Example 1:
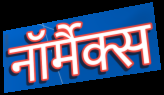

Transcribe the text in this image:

नॉर्मैक्स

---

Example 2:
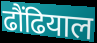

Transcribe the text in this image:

ढौंढियाल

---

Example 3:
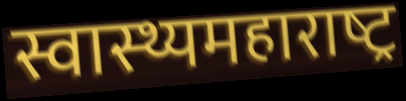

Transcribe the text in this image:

स्वास्थ्यमहाराष्ट्र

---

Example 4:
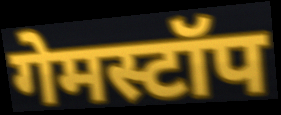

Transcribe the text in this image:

गेमस्टॉप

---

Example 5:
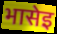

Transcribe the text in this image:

भासेइ